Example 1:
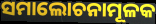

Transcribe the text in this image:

ସମାଲୋଚନାମୂଳକ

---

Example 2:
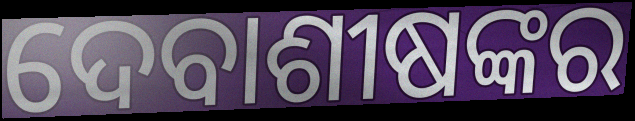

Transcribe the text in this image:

ଦେବାଶୀଷଙ୍କର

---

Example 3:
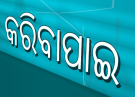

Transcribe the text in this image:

କରିବାପାଇ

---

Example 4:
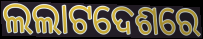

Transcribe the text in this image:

ଲଲାଟଦେଶରେ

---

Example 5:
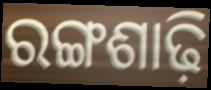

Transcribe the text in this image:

ରଙ୍ଗଶାଢ଼ି